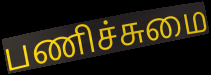
பணிச்சுமை